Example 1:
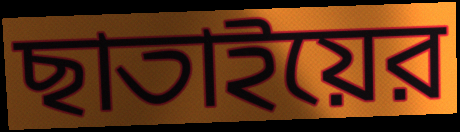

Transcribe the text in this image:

ছাতাইয়ের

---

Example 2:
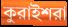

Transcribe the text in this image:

কুরাইশরা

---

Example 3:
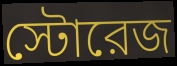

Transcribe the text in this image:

স্টোরেজ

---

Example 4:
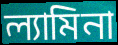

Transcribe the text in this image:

ল্যামিনা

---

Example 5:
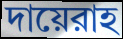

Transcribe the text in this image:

দায়েরাহ